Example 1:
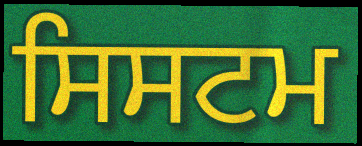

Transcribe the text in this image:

ਸਿਸਟਮ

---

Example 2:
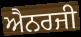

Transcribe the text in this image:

ਐਨਰਜੀ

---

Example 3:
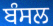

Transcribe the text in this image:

ਬੰਸਲ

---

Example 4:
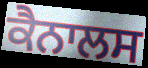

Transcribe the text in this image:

ਕੈਨਾਲਸ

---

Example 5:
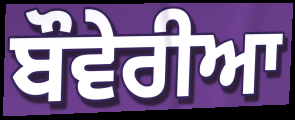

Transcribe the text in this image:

ਬੌਵੇਰੀਆ